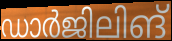
ഡാർജിലിങ്